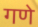
गणे